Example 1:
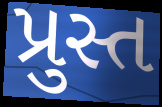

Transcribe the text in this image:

પ્રુસ્ત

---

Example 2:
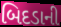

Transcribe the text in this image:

બિદડાની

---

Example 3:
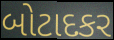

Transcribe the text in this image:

બોટાદકર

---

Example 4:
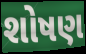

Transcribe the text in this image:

શોષણ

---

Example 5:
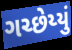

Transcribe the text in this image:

ગચ્છેય્યું